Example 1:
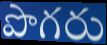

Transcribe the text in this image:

పొగరు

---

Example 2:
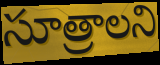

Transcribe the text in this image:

సూత్రాలని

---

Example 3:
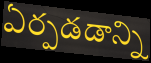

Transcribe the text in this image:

ఏర్పడడాన్ని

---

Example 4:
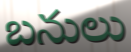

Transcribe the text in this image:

బనులు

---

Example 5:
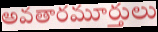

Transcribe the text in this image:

అవతారమూర్తులు